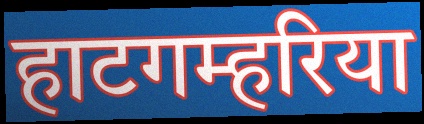
हाटगम्हरिया